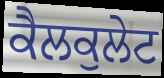
ਕੈਲਕੁਲੇਟ